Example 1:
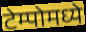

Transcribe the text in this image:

टेम्पोमध्ये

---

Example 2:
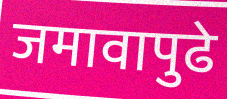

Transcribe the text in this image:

जमावापुढे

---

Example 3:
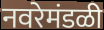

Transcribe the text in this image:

नवरेमंडळी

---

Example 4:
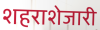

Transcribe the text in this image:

शहराशेजारी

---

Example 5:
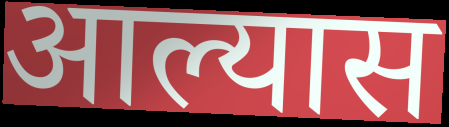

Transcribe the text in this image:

आल्यास